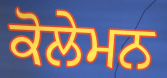
ਕੋਲੇਮਨ